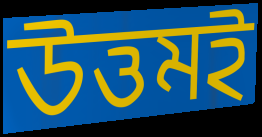
উত্তমই